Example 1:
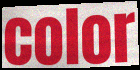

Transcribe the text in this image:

color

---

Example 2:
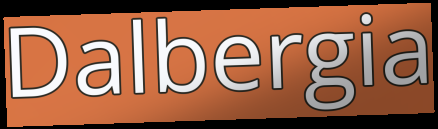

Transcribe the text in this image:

Dalbergia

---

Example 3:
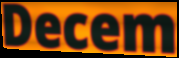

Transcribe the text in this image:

Decem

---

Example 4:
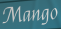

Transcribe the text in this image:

Mango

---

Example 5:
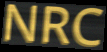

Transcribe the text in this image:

NRC